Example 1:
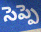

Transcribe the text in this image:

సెప్పె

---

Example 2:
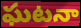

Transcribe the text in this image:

ఘటనా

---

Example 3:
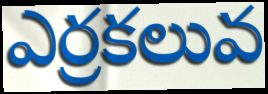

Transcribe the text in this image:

ఎర్రకలువ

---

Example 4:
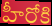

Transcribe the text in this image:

హీరోకి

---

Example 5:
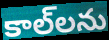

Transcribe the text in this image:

కాల్‌లను